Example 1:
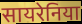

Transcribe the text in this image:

सायरेनिया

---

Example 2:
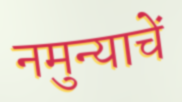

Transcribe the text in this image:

नमुन्याचें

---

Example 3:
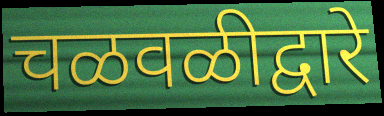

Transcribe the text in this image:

चळवळीद्वारे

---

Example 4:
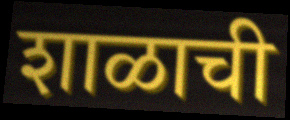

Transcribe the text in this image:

शाळाची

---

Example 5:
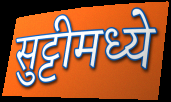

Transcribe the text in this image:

सुट्टीमध्ये